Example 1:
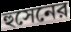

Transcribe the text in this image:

হুসেনের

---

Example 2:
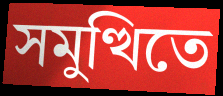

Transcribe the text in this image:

সমুত্থিতে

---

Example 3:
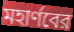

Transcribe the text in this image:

মহার্ণবের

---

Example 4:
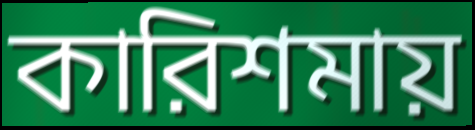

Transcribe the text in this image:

কারিশমায়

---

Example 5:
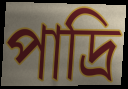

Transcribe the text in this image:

পাদ্রি